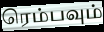
ரெம்பவும்